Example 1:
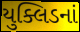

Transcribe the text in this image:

યુક્લિડનાં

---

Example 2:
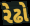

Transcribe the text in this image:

રેઢો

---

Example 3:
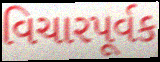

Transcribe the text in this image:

વિચારપૂર્વક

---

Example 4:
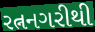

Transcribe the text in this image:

રત્નનગરીથી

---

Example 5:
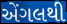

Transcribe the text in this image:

એંગલથી